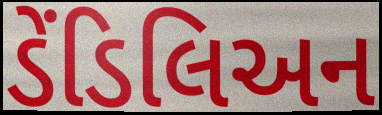
ડેંડિલિઅન